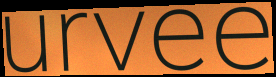
urvee